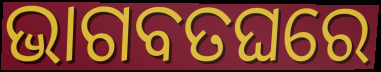
ଭାଗବତଘରେ